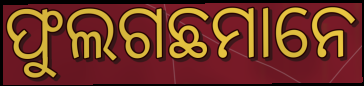
ଫୁଲଗଛମାନେ